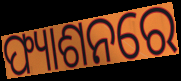
ଫ୍ୟାଶନରେ